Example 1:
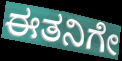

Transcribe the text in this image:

ಈತನಿಗೇ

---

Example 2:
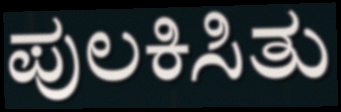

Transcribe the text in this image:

ಪುಲಕಿಸಿತು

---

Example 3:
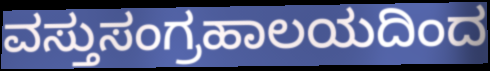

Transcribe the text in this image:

ವಸ್ತುಸಂಗ್ರಹಾಲಯದಿಂದ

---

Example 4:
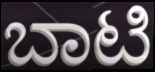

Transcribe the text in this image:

ಬಾಟಿ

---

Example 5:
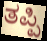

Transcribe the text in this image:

ತಪ್ಪಿ